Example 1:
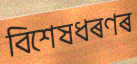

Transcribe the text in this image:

বিশেষধৰণৰ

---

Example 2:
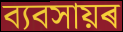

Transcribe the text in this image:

ব্যবসায়ৰ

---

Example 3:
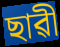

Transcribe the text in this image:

ছাৱী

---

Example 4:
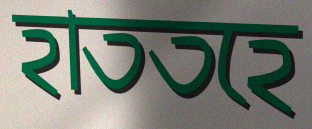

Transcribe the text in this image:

হাততহে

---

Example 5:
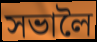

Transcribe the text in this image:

সভালৈ